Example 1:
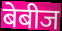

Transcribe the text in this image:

बेबीज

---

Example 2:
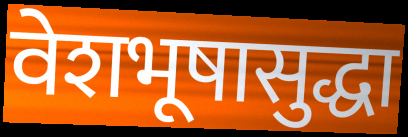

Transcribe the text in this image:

वेशभूषासुद्धा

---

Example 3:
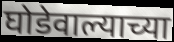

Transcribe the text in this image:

घोडेवाल्याच्या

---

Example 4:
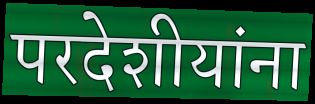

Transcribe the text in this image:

परदेशीयांना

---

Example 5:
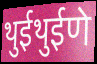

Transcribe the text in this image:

थुईथुईणे